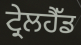
ਟ੍ਰੇਲਹੈੱਡ